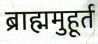
ब्राह्ममुहूर्त